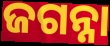
ଜଗନ୍ନା